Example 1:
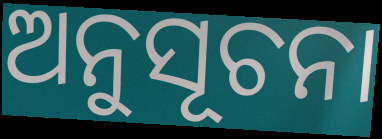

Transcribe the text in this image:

ଅନୁସୂଚନା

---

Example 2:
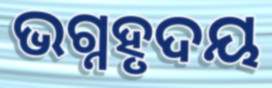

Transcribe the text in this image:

ଭଗ୍ନହୃଦୟ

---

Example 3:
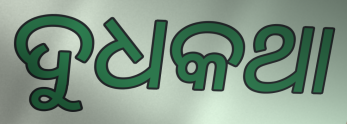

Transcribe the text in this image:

ଦୁଧକଥା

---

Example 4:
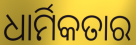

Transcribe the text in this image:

ଧାର୍ମିକତାର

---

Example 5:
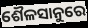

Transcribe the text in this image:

ଶୈଳସାନୁରେ